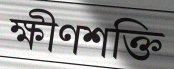
ক্ষীণশক্তি